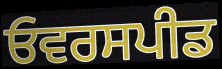
ਓਵਰਸਪੀਡ